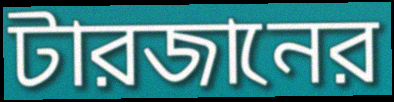
টারজানের